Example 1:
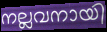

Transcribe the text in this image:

നല്ലവനായി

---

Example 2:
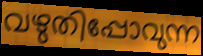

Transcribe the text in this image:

വഴുതിപ്പോവുന്ന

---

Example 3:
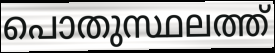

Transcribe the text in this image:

പൊതുസ്ഥലത്ത്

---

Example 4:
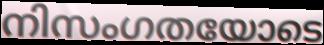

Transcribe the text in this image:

നിസംഗതയോടെ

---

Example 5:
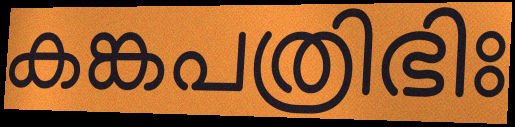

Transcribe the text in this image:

കങ്കപത്രിഭിഃ